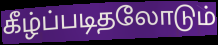
கீழ்ப்படிதலோடும்